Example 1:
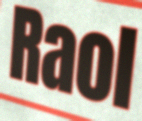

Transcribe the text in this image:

Raol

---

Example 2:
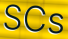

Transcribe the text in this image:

SCs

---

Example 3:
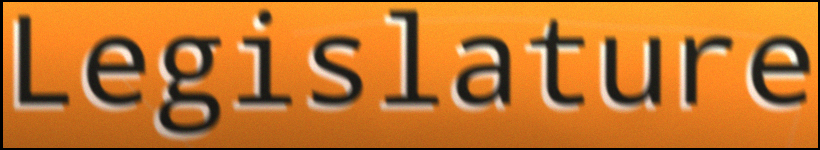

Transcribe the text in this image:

Legislature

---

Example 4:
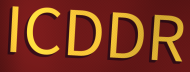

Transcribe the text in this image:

ICDDR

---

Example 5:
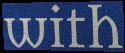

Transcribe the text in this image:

with